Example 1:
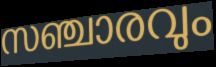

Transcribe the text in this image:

സഞ്ചാരവും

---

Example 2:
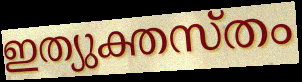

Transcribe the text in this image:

ഇത്യുക്തസ്തം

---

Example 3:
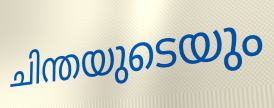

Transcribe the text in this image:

ചിന്തയുടെയും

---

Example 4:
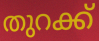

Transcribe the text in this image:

തുറക്ക്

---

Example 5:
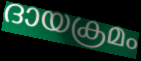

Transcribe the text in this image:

ദായക്രമം